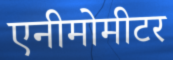
एनीमोमीटर